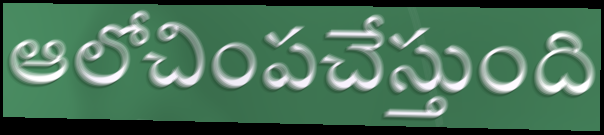
ఆలోచింపచేస్తుంది